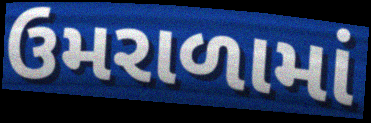
ઉમરાળામાં